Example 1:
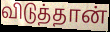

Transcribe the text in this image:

விடுத்தான்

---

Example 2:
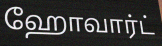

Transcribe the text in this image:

ஹோவார்ட்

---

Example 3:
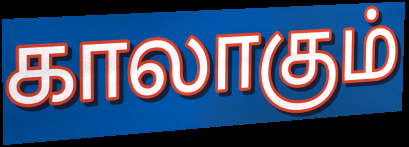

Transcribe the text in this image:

காலாகும்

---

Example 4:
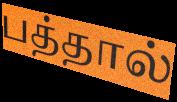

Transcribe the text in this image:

பத்தால்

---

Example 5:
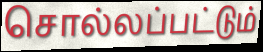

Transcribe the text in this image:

சொல்லப்பட்டும்